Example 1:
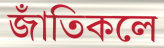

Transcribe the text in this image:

জাঁতিকলে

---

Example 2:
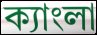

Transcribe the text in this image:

ক্যাংলা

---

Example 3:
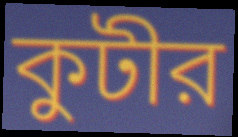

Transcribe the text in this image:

কুটীর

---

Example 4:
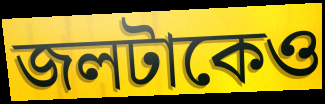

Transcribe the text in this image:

জলটাকেও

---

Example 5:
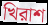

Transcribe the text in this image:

খিরাশ